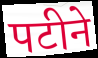
पटीने